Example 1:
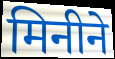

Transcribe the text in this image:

मिनीने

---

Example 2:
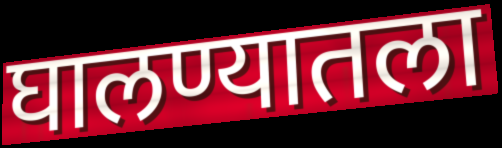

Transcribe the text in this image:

घालण्यातला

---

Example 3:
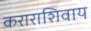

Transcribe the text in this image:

कराराशिवाय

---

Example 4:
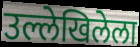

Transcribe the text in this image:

उल्लेखिलेला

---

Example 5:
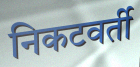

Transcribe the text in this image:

निकटवर्ती